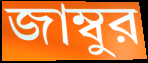
জাম্বুর